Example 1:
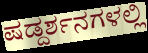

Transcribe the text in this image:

ಷಡ್ದರ್ಶನಗಳಲ್ಲಿ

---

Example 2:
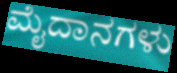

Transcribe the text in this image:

ಮೈದಾನಗಳು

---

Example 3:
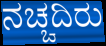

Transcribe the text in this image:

ನಚ್ಚದಿರು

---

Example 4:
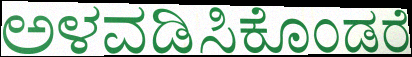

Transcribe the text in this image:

ಅಳವಡಿಸಿಕೊಂಡರೆ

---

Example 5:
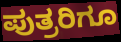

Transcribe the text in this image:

ಪುತ್ರರಿಗೂ